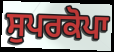
ਸੁਪਰਕੋਪਾ